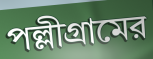
পল্লীগ্রামের